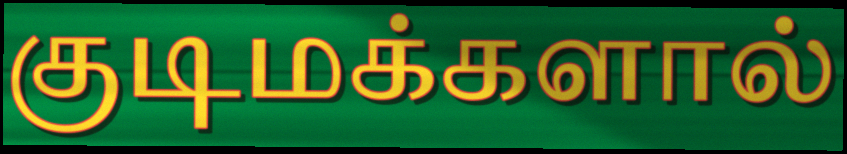
குடிமக்களால்